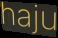
haju